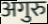
अगुरु